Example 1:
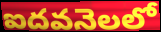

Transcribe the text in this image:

ఐదవనెలలో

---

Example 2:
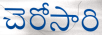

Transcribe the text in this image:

చెరోసారి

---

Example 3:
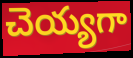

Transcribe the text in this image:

చెయ్యగా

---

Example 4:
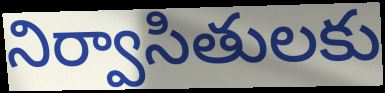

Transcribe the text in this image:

నిర్వాసితులకు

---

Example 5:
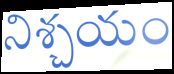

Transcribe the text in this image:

నిశ్చయం